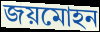
জয়মোহন